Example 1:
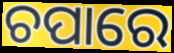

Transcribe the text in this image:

ଚପାରେ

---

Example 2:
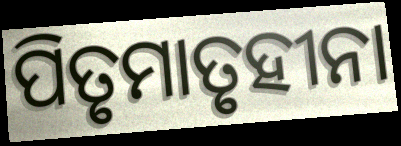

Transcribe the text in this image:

ପିତୃମାତୃହୀନା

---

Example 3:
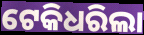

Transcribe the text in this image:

ଟେକିଧରିଲା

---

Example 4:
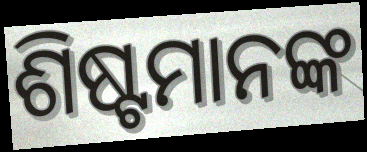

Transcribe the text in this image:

ଶିଷ୍ଟମାନଙ୍କ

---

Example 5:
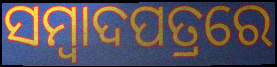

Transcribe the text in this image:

ସମ୍ୱାଦପତ୍ରରେ